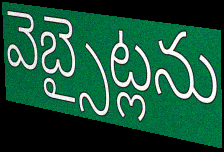
వెబ్సైట్లను